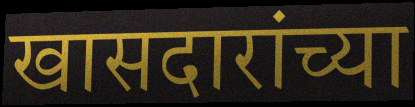
खासदारांच्या